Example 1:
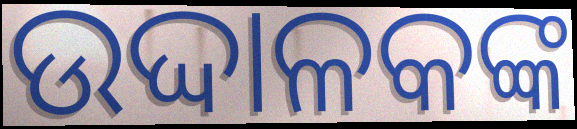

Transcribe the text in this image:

ଉଦ୍ଦାଳକଙ୍କ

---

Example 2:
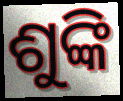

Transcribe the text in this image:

ଶୁଙ୍କି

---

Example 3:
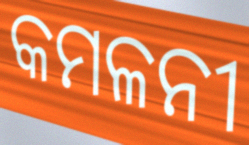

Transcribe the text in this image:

କମଳନୀ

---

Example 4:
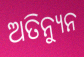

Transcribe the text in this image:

ଅତିନ୍ୟୁନ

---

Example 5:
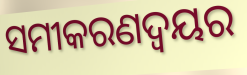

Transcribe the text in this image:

ସମୀକରଣଦ୍ଵୟର